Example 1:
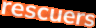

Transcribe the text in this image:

rescuers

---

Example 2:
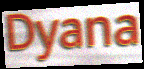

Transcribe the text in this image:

Dyana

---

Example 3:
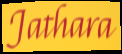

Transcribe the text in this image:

Jathara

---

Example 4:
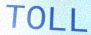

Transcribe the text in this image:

TOLL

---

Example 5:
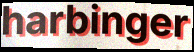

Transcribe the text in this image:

harbinger